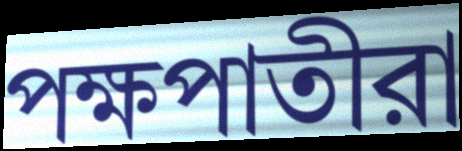
পক্ষপাতীরা